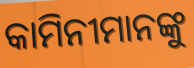
କାମିନୀମାନଙ୍କୁ